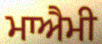
ਮਾਐਮੀ